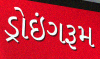
ડ્રોઇંગરૂમ